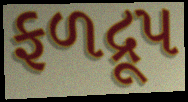
ફળદ્રૂપ